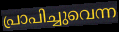
പ്രാപിച്ചുവെന്ന